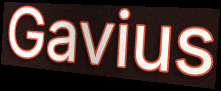
Gavius